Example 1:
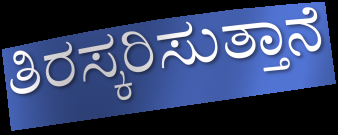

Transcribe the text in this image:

ತಿರಸ್ಕರಿಸುತ್ತಾನೆ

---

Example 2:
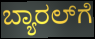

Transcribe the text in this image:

ಬ್ಯಾರಲ್‌ಗೆ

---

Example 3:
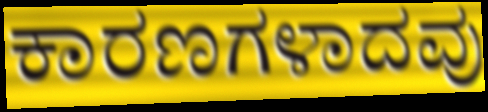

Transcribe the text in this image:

ಕಾರಣಗಳಾದವು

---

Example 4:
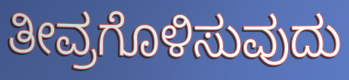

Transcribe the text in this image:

ತೀವ್ರಗೊಳಿಸುವುದು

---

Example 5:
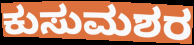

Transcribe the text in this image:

ಕುಸುಮಶರ